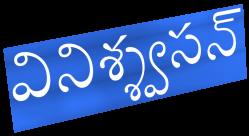
వినిశ్శ్వసన్